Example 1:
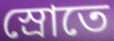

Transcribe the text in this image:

স্রোতে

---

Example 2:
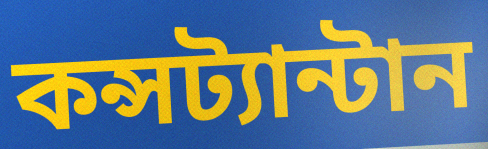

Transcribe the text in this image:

কন্সট্যান্টান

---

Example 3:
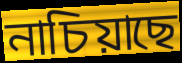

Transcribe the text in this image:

নাচিয়াছে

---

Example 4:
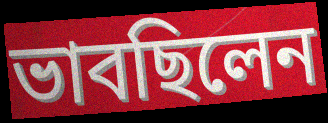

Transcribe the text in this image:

ভাবছিলেন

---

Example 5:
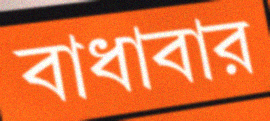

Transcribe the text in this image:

বাধাবার